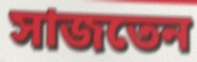
সাজতেন